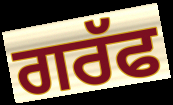
ਗਰੱਫ